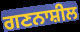
ਗਣਨਾਸ਼ੀਲ